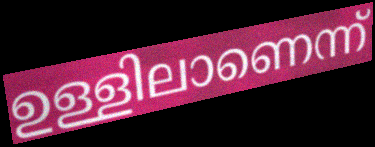
ഉള്ളിലാണെന്ന്